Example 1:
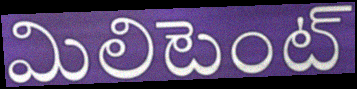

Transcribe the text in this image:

మిలిటెంట్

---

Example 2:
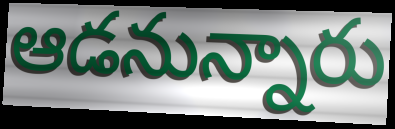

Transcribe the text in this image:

ఆడనున్నారు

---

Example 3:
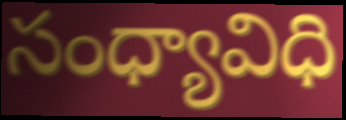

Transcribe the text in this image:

సంధ్యావిధి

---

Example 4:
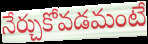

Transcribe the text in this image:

నేర్చుకోవడమంటే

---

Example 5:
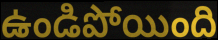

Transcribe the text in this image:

ఉండిపోయింది